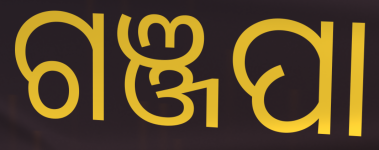
ଗଞ୍ଜପା